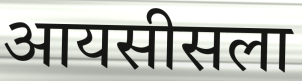
आयसीसला